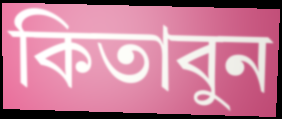
কিতাবুন